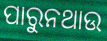
ପାରୁନଥାଉ